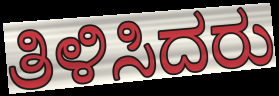
ತಿಳಿಸಿದರು